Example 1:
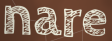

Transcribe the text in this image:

nare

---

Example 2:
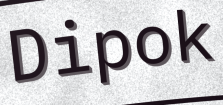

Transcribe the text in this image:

Dipok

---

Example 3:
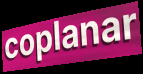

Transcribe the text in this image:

coplanar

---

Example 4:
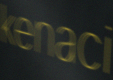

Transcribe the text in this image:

kenaci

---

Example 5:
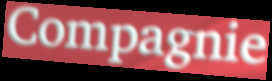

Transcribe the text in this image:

Compagnie